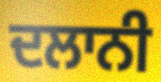
ਦਲਾਨੀ